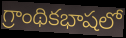
గ్రాంథికభాషలో